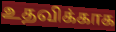
உதவிக்காக